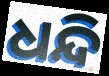
ଧନ୍ଦି